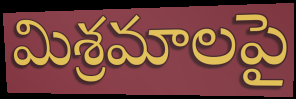
మిశ్రమాలపై